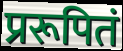
प्ररूपितं